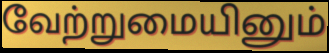
வேற்றுமையினும்